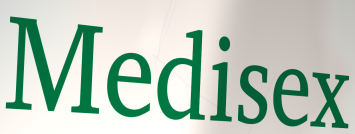
Medisex